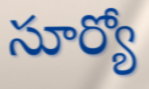
సూర్యో